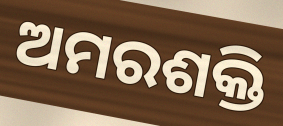
ଅମରଶକ୍ତି